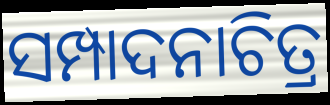
ସମ୍ପାଦନାଚିତ୍ର